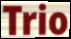
Trio